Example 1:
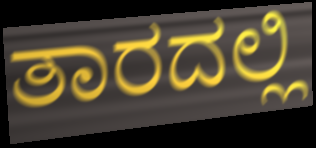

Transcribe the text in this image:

ತಾರದಲ್ಲಿ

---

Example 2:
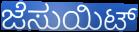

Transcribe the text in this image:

ಜೆಸುಯಿಟ್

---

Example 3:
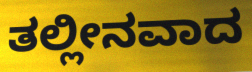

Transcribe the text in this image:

ತಲ್ಲೀನವಾದ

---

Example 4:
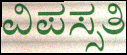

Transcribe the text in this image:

ವಿಪಸ್ಸತಿ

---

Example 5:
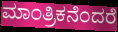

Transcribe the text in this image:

ಮಾಂತ್ರಿಕನೆಂದರೆ